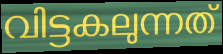
വിട്ടകലുന്നത്